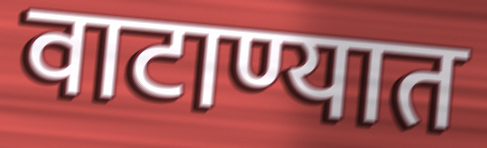
वाटाण्यात